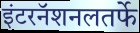
इंटरनॅशनलतर्फे